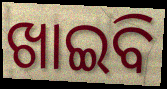
ଖାଇବି